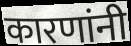
कारणांनी